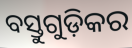
ବସ୍ତୁଗୁଡ଼ିକର